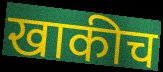
खाकीच